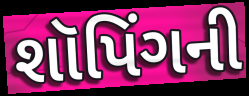
શૉપિંગની